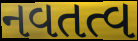
નવતત્વ